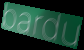
bardu